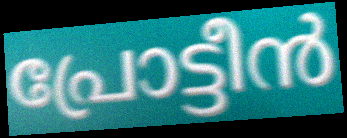
പ്രോട്ടീൻ